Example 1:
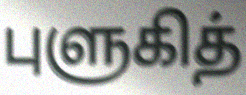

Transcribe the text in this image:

புளுகித்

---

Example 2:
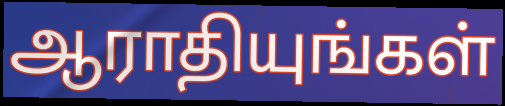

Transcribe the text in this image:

ஆராதியுங்கள்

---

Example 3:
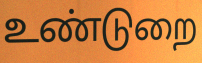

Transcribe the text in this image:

உண்டுறை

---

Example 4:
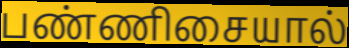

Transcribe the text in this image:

பண்ணிசையால்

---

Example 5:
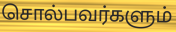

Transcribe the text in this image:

சொல்பவர்களும்